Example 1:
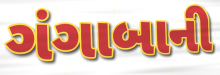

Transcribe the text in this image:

ગંગાબાની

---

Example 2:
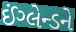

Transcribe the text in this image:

ઈંગ્લેન્ડને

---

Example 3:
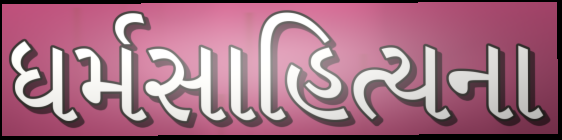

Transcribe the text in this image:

ધર્મસાહિત્યના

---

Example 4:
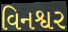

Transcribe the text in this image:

વિનશ્વર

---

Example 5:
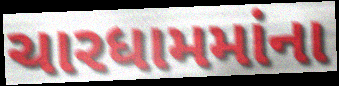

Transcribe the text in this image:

ચારધામમાંના